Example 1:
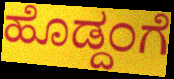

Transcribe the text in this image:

ಹೊಡ್ದಂಗೆ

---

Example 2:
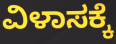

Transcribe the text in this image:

ವಿಳಾಸಕ್ಕೆ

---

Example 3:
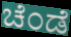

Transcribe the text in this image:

ಚೆಂಡೆ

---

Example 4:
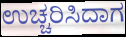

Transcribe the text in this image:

ಉಚ್ಚರಿಸಿದಾಗ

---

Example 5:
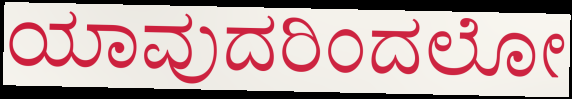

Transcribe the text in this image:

ಯಾವುದರಿಂದಲೋ